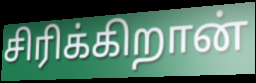
சிரிக்கிறான்